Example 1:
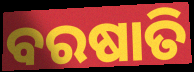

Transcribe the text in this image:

ବରଷାତି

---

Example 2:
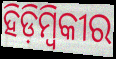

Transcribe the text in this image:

ହିଡ଼ିମ୍ବିକୀର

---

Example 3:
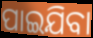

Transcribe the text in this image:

ପାଇଯିବା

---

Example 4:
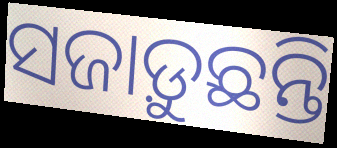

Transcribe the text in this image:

ସଜାଡ଼ୁଛନ୍ତି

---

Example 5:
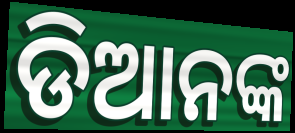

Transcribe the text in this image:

ଡିଆନଙ୍କ